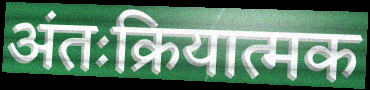
अंतःक्रियात्मक